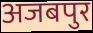
अजबपुर